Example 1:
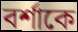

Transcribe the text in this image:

বর্শাকে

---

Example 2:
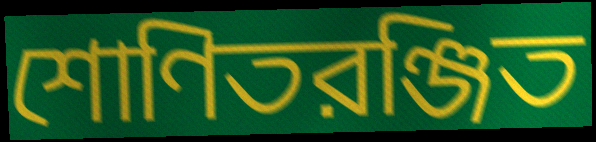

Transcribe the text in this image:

শোণিতরঞ্জিত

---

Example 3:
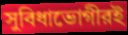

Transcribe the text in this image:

সুবিধাভোগীরই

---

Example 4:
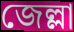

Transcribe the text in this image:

জেল্লা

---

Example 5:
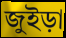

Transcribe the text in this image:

জুইড়া